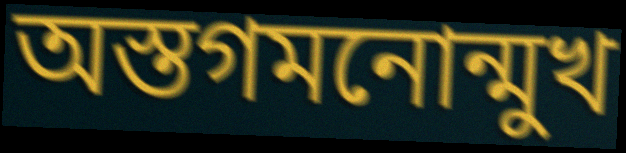
অস্তগমনোন্মুখ